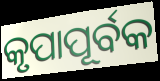
କୃପାପୂର୍ବକ